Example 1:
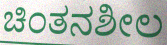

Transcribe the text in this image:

ಚಿಂತನಶೀಲ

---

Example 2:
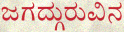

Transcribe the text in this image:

ಜಗದ್ಗುರುವಿನ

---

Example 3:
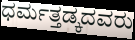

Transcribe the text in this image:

ಧರ್ಮತ್ತಡ್ಕದವರು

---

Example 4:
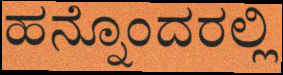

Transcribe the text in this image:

ಹನ್ನೊಂದರಲ್ಲಿ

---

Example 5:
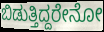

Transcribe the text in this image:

ಬಿಡುತ್ತಿದ್ದರೇನೋ